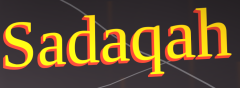
Sadaqah